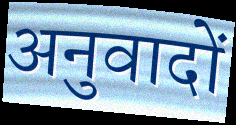
अनुवादों